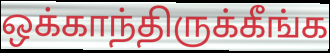
ஒக்காந்திருக்கீங்க